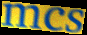
mcs